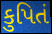
કુપિતં